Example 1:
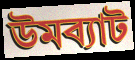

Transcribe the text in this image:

উমব্যাট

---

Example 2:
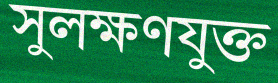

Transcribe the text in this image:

সুলক্ষণযুক্ত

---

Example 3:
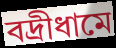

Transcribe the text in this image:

বদ্রীধামে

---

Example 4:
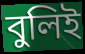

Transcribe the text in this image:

বুলিই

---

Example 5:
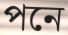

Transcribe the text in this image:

পনে